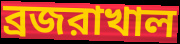
ব্রজরাখাল